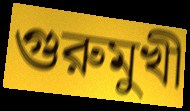
গুরুমুখী